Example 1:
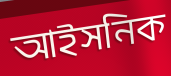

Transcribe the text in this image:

আইসনিক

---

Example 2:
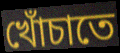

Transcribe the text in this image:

খোঁচাতে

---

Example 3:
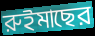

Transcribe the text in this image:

রুইমাছের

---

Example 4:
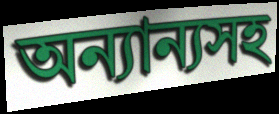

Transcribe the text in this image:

অন্যান্যসহ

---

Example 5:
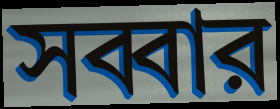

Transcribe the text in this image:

সব্বার